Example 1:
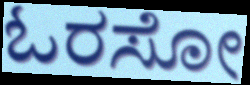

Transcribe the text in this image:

ಓರಸೋ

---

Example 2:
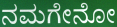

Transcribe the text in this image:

ನಮಗೇನೋ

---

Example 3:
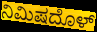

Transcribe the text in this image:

ನಿಮಿಷದೊಳ್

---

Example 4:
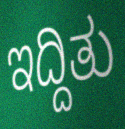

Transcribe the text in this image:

ಇದ್ದಿತು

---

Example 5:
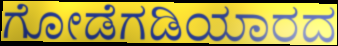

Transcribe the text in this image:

ಗೋಡೆಗಡಿಯಾರದ